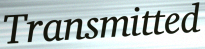
Transmitted